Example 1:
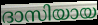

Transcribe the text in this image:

ദാസിയായ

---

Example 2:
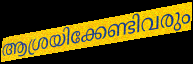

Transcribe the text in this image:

ആശ്രയിക്കേണ്ടിവരും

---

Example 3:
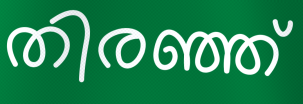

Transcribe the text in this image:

തിരഞ്ഞ്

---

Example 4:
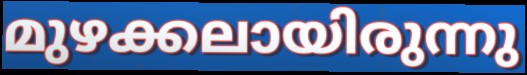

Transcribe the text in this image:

മുഴക്കലായിരുന്നു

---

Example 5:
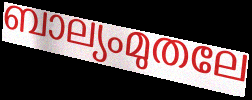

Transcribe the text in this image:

ബാല്യംമുതലേ